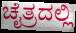
ಚೈತ್ರದಲ್ಲಿ